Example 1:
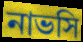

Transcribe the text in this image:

নাভসি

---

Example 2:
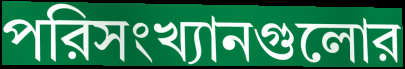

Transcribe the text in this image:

পরিসংখ্যানগুলোর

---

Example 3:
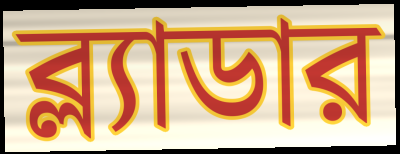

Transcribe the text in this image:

ব্ল্যাডার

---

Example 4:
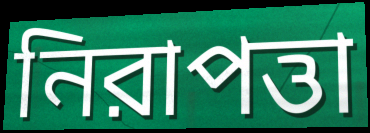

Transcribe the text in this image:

নিরাপত্তা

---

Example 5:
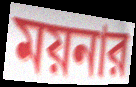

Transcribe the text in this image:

ময়নার